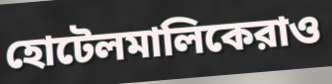
হোটেলমালিকেরাও